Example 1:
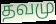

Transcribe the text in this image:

தவமு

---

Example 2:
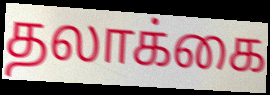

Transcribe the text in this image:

தலாக்கை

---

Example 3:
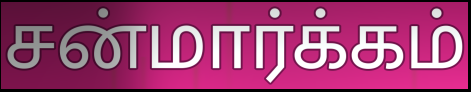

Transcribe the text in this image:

சன்மார்க்கம்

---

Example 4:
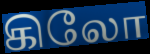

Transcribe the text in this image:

கிலோ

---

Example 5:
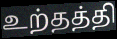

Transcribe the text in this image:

உற்தத்தி